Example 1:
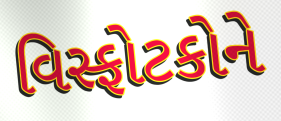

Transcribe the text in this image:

વિસ્ફોટકોને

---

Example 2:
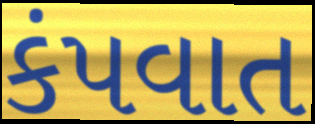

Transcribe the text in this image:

કંપવાત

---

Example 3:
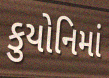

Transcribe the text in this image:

કુયોનિમાં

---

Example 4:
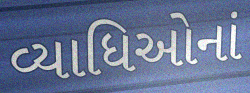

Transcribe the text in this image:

વ્યાધિઓનાં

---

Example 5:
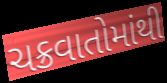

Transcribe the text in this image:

ચક્રવાતોમાંથી